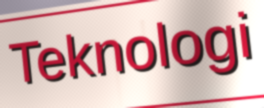
Teknologi